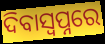
ଦିବାସ୍ବପ୍ନରେ